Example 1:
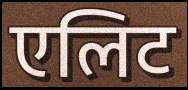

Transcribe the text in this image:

एलिट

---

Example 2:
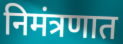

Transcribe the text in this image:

निमंत्रणात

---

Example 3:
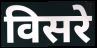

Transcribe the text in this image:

विसरे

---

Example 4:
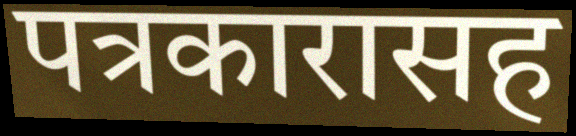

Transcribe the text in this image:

पत्रकारासह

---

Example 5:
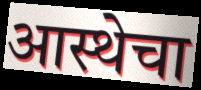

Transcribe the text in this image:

आस्थेचा